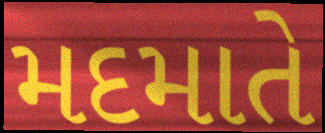
મદમાતે